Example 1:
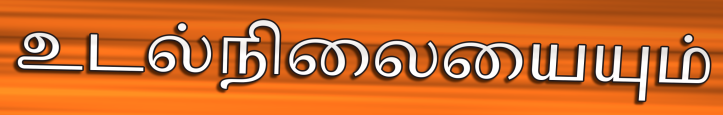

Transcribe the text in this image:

உடல்நிலையையும்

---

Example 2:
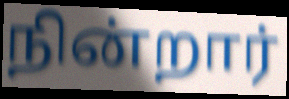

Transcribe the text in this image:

நின்றார்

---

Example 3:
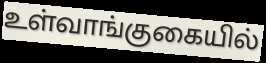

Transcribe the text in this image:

உள்வாங்குகையில்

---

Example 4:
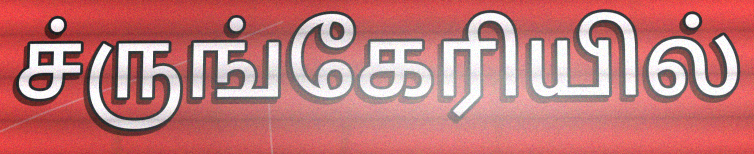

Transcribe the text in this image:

ச்ருங்கேரியில்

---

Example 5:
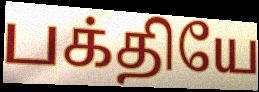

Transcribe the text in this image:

பக்தியே